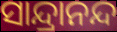
ସାନ୍ଦ୍ରାନନ୍ଦ